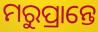
ମରୁପ୍ରାନ୍ତେ